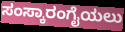
ಸಂಸ್ಕಾರಂಗೈಯಲು